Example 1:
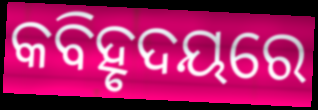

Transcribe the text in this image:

କବିହୃଦୟରେ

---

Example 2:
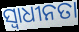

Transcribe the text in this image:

ସ୍ବାଧୀନତା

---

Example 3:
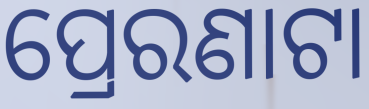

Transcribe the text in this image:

ପ୍ରେରଣାଟା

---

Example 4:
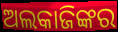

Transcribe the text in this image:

ଅଲକାଜିଙ୍କର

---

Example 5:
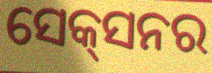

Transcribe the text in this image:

ସେକ୍‌ସନର